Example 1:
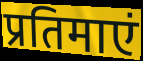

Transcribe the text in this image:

प्रतिमाएं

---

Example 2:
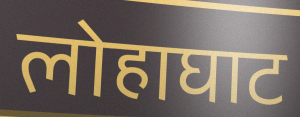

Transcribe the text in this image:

लोहाघाट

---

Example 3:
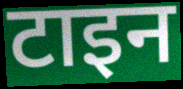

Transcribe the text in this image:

टाइन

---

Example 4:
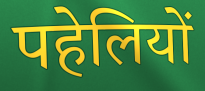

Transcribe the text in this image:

पहेलियों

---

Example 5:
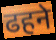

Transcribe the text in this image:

ढहने